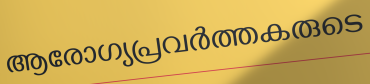
ആരോഗ്യപ്രവർത്തകരുടെ